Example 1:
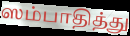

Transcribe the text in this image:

ஸம்பாதித்து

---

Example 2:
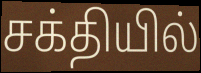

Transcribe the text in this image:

சக்தியில்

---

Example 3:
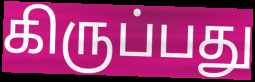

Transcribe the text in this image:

கிருப்பது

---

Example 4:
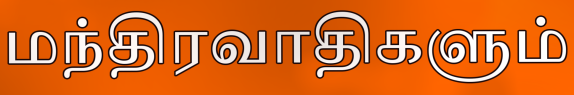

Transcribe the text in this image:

மந்திரவாதிகளும்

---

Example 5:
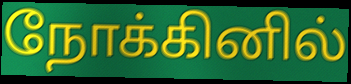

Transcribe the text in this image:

நோக்கினில்